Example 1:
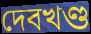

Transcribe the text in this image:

দেবখণ্ড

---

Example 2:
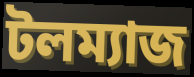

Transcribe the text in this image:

টলম্যাজ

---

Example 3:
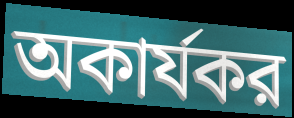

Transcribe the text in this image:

অকার্যকর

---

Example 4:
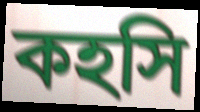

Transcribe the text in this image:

কহসি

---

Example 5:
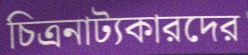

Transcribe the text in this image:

চিত্রনাট্যকারদের